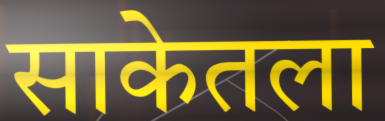
साकेतला